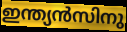
ഇന്ത്യൻസിനു